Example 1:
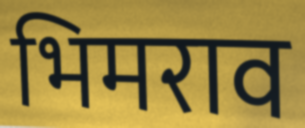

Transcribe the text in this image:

भिमराव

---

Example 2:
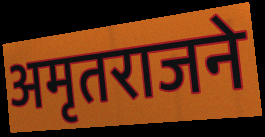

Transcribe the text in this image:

अमृतराजने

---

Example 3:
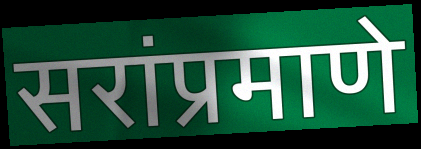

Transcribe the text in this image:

सरांप्रमाणे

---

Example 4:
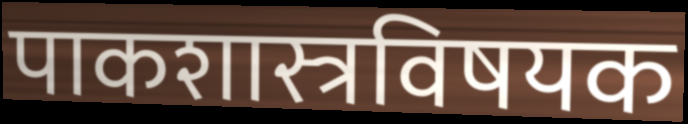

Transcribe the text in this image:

पाकशास्त्रविषयक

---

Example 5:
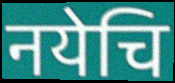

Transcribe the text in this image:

नयेचि